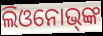
ଲିଓନୋଭ୍‌ଙ୍କ